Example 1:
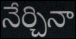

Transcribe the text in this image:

నేర్చినా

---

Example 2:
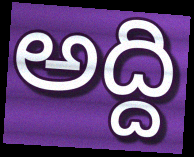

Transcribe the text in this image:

అద్ది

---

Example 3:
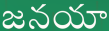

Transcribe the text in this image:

జనయా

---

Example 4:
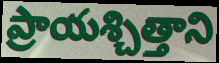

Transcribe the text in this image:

ప్రాయశ్చిత్తాని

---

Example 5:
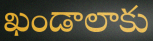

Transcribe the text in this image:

ఖండాలాకు